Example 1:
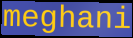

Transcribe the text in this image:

meghani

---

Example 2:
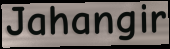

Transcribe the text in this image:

Jahangir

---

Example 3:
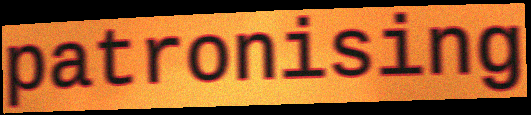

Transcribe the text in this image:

patronising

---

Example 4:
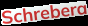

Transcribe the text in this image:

Schrebera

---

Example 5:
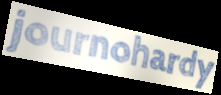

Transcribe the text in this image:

journohardy